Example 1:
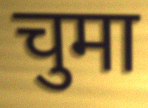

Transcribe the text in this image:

चुमा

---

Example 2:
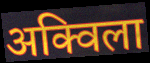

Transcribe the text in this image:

अक्विला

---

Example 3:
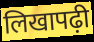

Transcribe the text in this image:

लिखापढ़ी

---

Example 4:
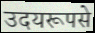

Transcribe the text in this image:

उदयरूपसे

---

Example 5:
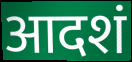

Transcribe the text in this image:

आदशं